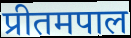
प्रीतमपाल